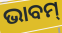
ଭାବମ୍